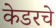
केडरचे